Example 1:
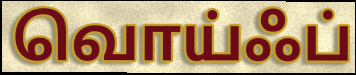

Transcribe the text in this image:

வொய்ஃப்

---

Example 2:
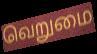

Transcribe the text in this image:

வெறுமை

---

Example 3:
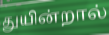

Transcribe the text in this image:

துயின்றால்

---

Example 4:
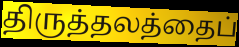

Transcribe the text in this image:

திருத்தலத்தைப்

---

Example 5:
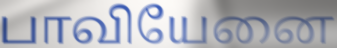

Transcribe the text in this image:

பாவியேனை